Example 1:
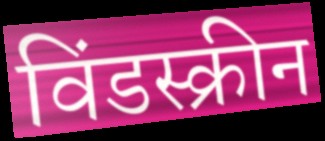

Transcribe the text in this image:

विंडस्क्रीन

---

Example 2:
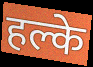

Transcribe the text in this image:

हल्‍के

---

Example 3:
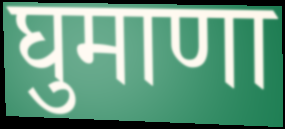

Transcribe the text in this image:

घुमाणा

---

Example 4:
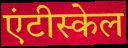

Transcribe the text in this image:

एंटीस्केल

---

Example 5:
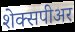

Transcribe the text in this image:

शेक्सपीअर